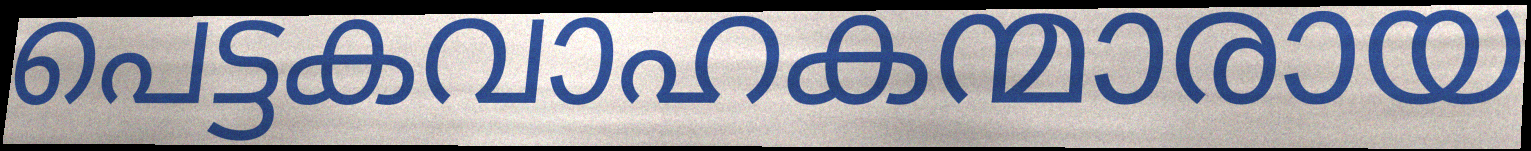
പെട്ടകവാഹകന്മാരായ